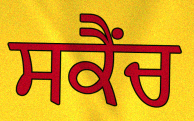
ਸਕੈਂਚ